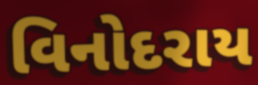
વિનોદરાય